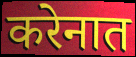
करेनात